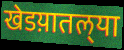
खेडय़ातल्या